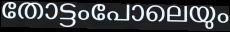
തോട്ടംപോലെയും